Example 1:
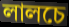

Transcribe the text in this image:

লালচে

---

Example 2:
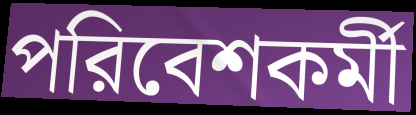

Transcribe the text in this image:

পরিবেশকর্মী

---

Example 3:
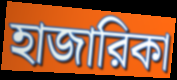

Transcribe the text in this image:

হাজারিকা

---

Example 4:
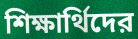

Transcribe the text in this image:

শিক্ষার্থিদের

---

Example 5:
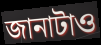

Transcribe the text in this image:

জানাটাও